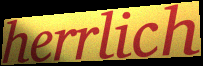
herrlich